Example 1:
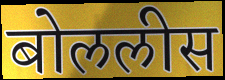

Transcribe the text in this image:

बोललीस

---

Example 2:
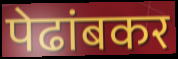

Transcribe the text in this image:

पेढांबकर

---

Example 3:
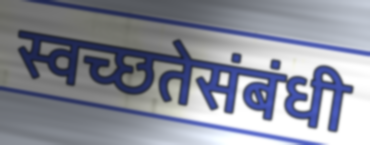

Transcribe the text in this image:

स्वच्छतेसंबंधी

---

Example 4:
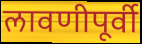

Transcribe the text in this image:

लावणीपूर्वी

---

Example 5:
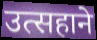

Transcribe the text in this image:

उत्सहाने